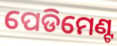
ପେଡିମେଣ୍ଟ